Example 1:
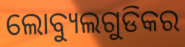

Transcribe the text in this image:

ଲୋବ୍ୟୁଲଗୁଡିକର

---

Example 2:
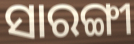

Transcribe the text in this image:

ସାରଙ୍ଗୀ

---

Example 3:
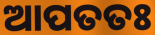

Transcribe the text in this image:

ଆପତତଃ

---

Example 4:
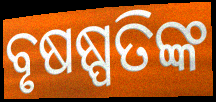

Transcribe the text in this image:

ବୃଷଷ୍ପତିଙ୍କ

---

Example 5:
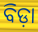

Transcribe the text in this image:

ବିଡ଼ା